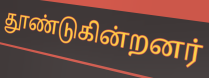
தூண்டுகின்றனர்